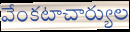
వేంకటాచార్యుల